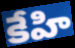
కేహి